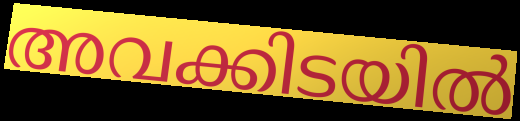
അവക്കിടയിൽ